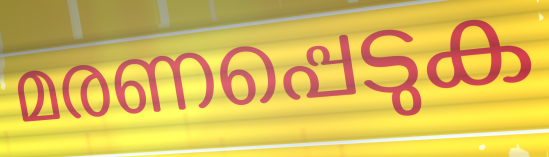
മരണപ്പെടുക